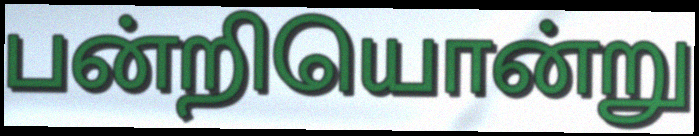
பன்றியொன்று